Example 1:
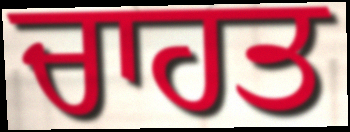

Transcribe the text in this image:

ਚਾਹਤ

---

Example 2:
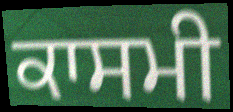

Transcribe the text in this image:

ਕਾਸਮੀ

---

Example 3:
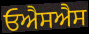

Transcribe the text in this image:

ਓਐਸਐਸ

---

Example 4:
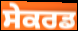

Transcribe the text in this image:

ਸੇਕਰਡ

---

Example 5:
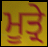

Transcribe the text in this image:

ਮੂਤ੍ਰੇ